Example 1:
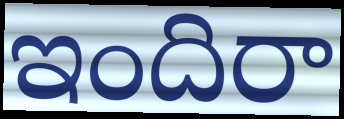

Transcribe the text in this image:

ఇందిరా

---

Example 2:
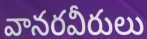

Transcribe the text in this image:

వానరవీరులు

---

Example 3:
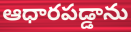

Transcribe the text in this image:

ఆధారపడ్డాను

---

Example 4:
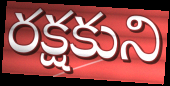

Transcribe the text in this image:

రక్షకుని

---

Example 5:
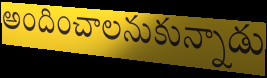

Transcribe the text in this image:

అందించాలనుకున్నాడు